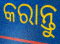
କରାନ୍ତୁ